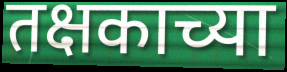
तक्षकाच्या